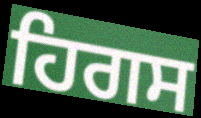
ਹਿਗਸ